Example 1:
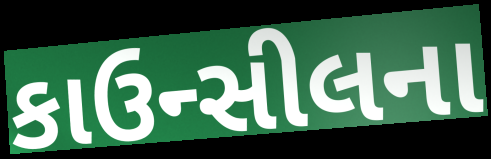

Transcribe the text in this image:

કાઉન્સીલના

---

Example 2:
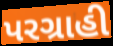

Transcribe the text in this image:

પરગ્રાહી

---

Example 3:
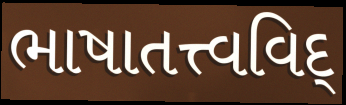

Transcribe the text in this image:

ભાષાતત્ત્વવિદ્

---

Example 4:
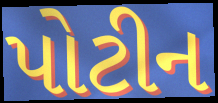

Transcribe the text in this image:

પોટીન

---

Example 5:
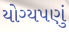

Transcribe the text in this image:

યોગ્યપણું